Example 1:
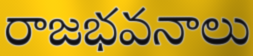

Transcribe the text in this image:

రాజభవనాలు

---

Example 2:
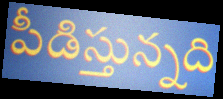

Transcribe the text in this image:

పీడిస్తున్నది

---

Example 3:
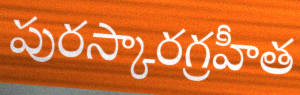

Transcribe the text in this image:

పురస్కారగ్రహీత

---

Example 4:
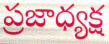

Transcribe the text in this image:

ప్రజాధ్యక్ష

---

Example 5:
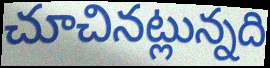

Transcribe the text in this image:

చూచినట్లున్నది